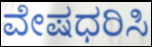
ವೇಷಧರಿಸಿ